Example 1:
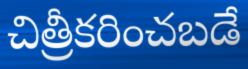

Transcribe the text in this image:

చిత్రీకరించబడే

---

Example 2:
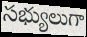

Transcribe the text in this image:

సభ్యులుగా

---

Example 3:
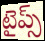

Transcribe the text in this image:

టైప్స్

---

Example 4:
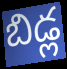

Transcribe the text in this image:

బిడ్ల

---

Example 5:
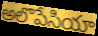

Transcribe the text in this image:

అలొపేసియా